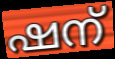
ഷന്